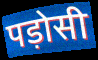
पड़ोसी